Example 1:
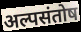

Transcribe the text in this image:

अल्पसंतोष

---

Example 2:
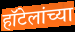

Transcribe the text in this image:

हॉटेलांच्या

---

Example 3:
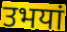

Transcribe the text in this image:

उभयां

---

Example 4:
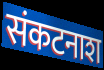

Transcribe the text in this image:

संकटनाश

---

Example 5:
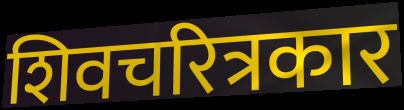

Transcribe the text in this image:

शिवचरित्रकार